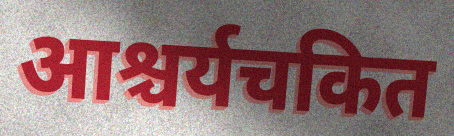
आश्चर्यचकित